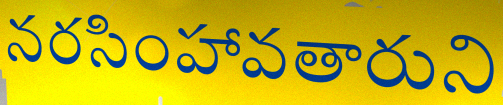
నరసింహావతారుని